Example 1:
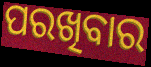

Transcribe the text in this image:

ପରଖିବାର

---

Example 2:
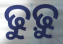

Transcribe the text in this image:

ଢୁଢ଼ୁ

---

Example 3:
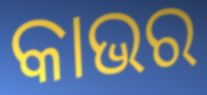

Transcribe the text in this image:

କାଭର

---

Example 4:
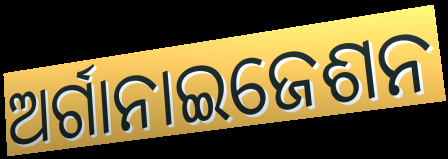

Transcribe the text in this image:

ଅର୍ଗାନାଇଜେଶନ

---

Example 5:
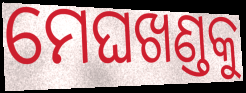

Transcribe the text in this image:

ମେଘଖଣ୍ଡକୁ